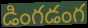
డింగడంగ